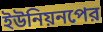
ইউনিয়নপের